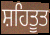
ਸ਼ਹਿਤੂਤ